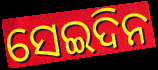
ସେଇଦିନ